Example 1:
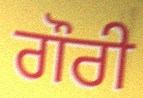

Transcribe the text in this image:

ਗੌਰੀ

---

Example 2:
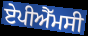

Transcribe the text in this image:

ਏਪੀਐੱਮਸੀ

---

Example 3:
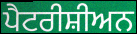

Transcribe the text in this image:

ਪੈਟਰੀਸ਼ੀਅਨ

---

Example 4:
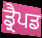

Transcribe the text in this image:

ਡ੍ਰੈਪਡ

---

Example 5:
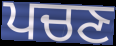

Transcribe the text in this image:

ਪਚਣ